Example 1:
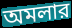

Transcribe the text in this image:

অমলার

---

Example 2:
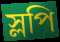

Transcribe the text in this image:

স্লপি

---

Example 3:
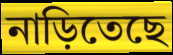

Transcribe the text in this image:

নাড়িতেছে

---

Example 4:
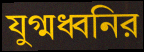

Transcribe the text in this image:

যুগ্মধ্বনির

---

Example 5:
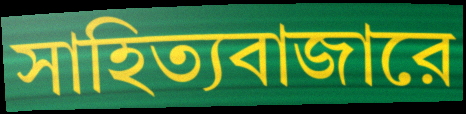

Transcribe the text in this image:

সাহিত্যবাজারে